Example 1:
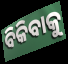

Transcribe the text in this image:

ବିକିବାକୁ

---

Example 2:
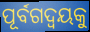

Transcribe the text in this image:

ପୂର୍ବଗଦ୍ଵୟକୁ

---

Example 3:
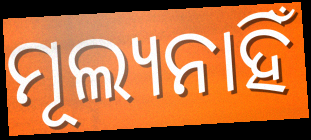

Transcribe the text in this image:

ମୂଲ୍ୟନାହିଁ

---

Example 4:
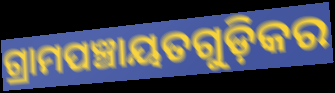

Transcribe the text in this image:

ଗ୍ରାମପଞ୍ଚାୟତଗୁଡ଼ିକର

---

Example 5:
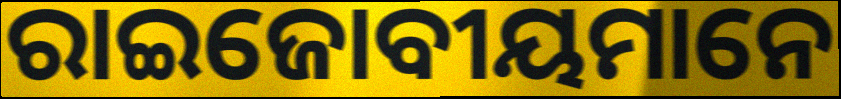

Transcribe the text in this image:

ରାଇଜୋବୀୟମାନେ